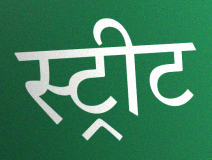
स्ट्रीट